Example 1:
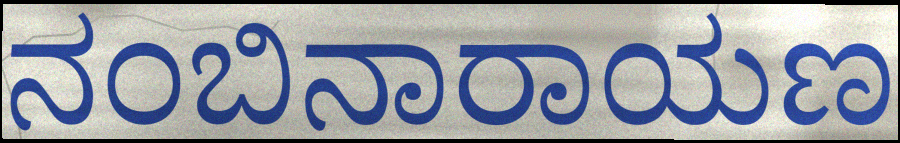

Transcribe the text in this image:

ನಂಬಿನಾರಾಯಣ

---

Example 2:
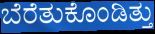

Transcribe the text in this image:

ಬೆರೆತುಕೊಂಡಿತ್ತು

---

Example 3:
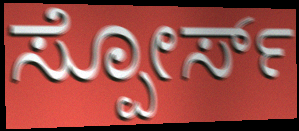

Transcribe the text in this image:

ಸ್ಪೋರ್ಸ್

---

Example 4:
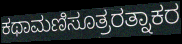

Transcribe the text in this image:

ಕಥಾಮಣಿಸೂತ್ರರತ್ನಾಕರ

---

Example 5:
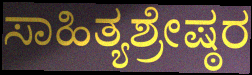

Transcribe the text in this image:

ಸಾಹಿತ್ಯಶ್ರೇಷ್ಠರ